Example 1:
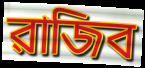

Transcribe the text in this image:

ৱাজিব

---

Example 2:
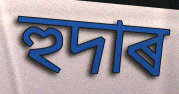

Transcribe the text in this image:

হুদাৰ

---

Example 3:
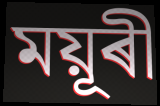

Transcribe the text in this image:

ময়ূৰী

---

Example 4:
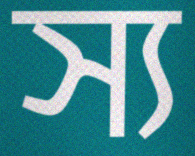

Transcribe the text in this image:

স্য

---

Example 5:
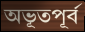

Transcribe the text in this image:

অভূতপূৰ্ব